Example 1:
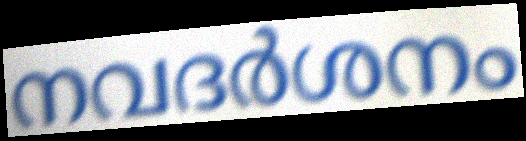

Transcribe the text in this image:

നവദർശനം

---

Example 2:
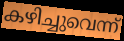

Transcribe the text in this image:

കഴിച്ചുവെന്ന്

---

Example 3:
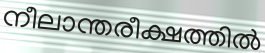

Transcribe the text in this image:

നീലാന്തരീക്ഷത്തിൽ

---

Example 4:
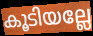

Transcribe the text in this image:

കൂടിയല്ലേ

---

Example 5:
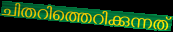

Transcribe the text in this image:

ചിതറിത്തെറിക്കുന്നത്